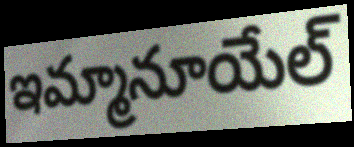
ఇమ్మానూయేల్